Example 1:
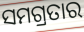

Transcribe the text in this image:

ସମଗ୍ରତାର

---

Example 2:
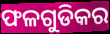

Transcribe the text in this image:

ଫଳଗୁଡିକର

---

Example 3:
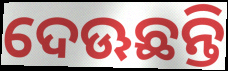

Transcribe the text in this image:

ଦେଊଛନ୍ତି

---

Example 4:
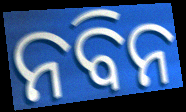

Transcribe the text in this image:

ନବିନ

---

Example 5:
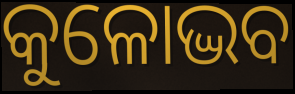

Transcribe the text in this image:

କୁଳୋଦ୍ଭବ